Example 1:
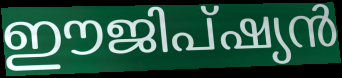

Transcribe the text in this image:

ഈജിപ്ഷ്യൻ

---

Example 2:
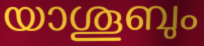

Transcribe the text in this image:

യാശൂബും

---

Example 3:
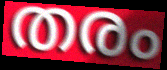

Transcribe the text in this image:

തരം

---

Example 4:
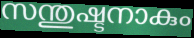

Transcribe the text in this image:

സന്തുഷ്ടനാകും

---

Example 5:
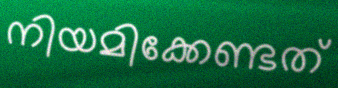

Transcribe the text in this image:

നിയമിക്കേണ്ടത്